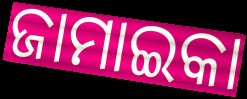
ଜାମାଇକା